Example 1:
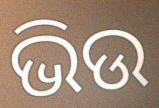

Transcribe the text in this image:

ଭିଉ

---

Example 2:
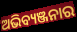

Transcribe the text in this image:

ଅଭିବ୍ୟଞ୍ଜନାର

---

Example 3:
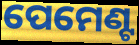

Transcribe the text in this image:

ପେମେଣ୍ଟ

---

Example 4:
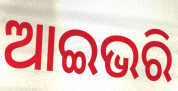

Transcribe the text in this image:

ଆଇଭରି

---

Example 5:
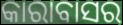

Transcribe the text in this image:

କାରାବାସର